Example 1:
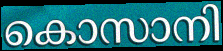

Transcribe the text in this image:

കൊസാനി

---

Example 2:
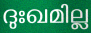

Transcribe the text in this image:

ദുഃഖമില്ല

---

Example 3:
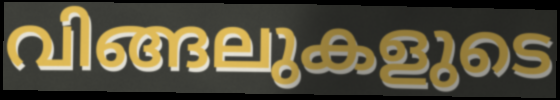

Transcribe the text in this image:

വിങ്ങലുകളുടെ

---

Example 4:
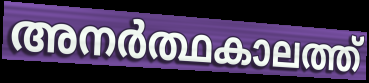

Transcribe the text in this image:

അനർത്ഥകാലത്ത്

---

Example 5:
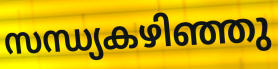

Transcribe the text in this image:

സന്ധ്യകഴിഞ്ഞു